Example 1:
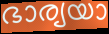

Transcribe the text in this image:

ഭാര്യയാ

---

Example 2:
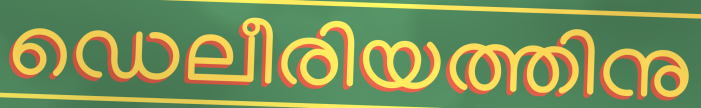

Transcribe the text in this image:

ഡെലീരിയത്തിനു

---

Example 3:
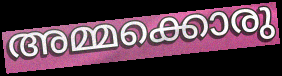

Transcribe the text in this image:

അമ്മക്കൊരു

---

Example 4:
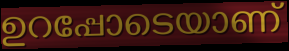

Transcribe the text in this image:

ഉറപ്പോടെയാണ്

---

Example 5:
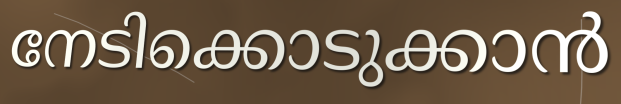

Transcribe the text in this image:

നേടിക്കൊടുക്കാൻ